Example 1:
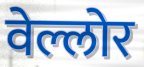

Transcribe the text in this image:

वेल्लोर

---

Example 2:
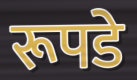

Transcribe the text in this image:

रूपडे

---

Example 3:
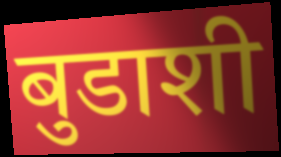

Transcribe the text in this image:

बुडाशी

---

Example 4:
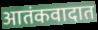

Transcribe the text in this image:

आतंकवादात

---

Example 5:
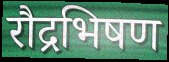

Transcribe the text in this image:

रौद्रभिषण